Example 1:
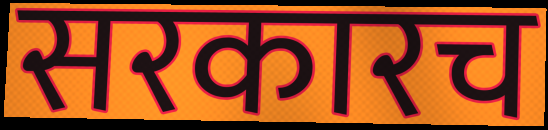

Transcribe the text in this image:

सरकारच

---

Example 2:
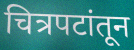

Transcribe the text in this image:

चित्रपटांतून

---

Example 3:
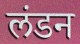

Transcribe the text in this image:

लंडन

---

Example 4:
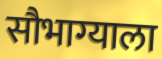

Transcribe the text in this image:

सौभाग्याला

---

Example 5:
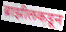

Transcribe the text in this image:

ब्राझीलकडून